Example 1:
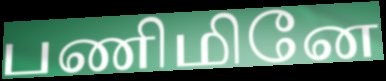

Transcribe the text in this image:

பணிமினே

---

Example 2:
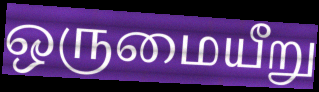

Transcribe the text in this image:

ஒருமையீறு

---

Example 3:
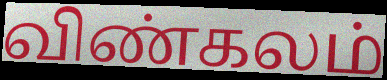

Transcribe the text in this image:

விண்கலம்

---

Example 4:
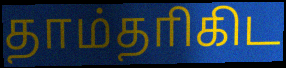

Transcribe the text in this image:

தாம்தரிகிட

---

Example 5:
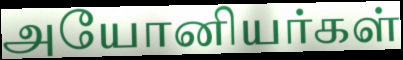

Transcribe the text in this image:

அயோனியர்கள்